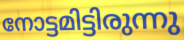
നോട്ടമിട്ടിരുന്നു